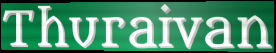
Thuraivan